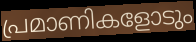
പ്രമാണികളോടും